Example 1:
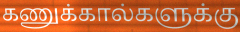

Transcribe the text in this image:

கணுக்கால்களுக்கு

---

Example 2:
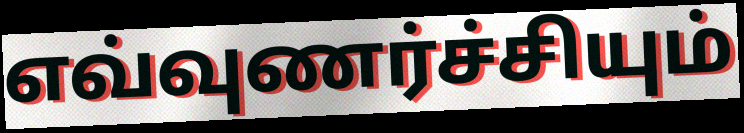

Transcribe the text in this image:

எவ்வுணர்ச்சியும்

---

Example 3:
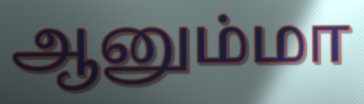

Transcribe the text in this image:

ஆனும்மா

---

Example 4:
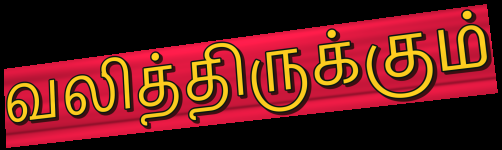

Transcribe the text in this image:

வலித்திருக்கும்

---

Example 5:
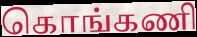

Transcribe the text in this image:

கொங்கணி